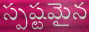
స్పష్టమైన